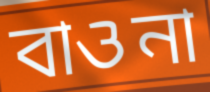
বাওনা